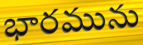
భారమును